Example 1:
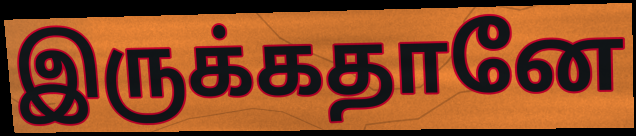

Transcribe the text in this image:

இருக்கதானே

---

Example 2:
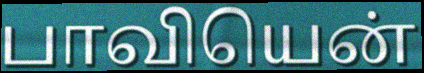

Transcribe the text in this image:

பாவியென்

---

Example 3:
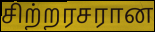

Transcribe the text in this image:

சிற்றரசரான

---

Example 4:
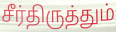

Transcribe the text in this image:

சீர்திருத்தும்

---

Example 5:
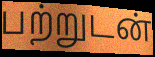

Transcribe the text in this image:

பற்றுடன்